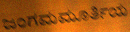
ಜಂಗಮಮೂರ್ತಿಯ